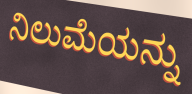
ನಿಲುಮೆಯನ್ನು